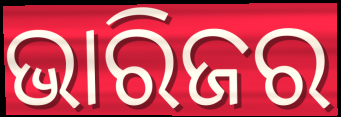
ଭାରିଜର